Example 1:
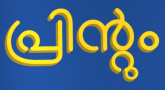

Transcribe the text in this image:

പ്രിന്റും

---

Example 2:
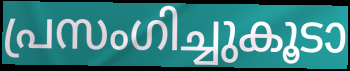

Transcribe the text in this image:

പ്രസംഗിച്ചുകൂടാ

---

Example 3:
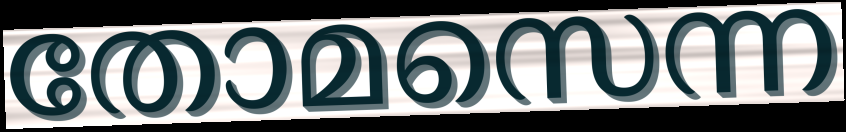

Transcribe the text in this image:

തോമസെന്ന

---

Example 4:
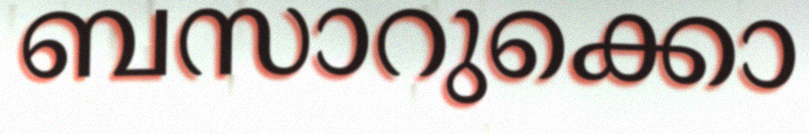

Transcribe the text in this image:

ബസാറുക്കൊ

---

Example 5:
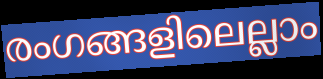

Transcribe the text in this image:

രംഗങ്ങളിലെല്ലാം